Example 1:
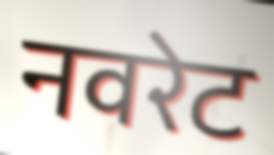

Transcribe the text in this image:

नवरेट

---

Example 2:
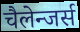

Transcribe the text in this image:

चैलेन्जर्स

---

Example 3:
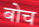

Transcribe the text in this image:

बोच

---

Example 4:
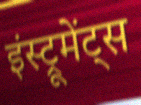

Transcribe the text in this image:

इंस्‍ट्रूमेंट्स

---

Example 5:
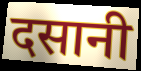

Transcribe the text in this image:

दसानी